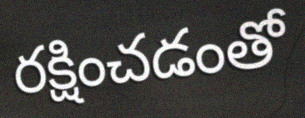
రక్షించడంతో